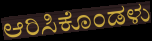
ಆರಿಸಿಕೊಂಡಳು